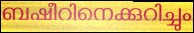
ബഷീറിനെക്കുറിച്ചും